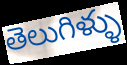
తెలుగిళ్ళు